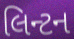
લિન્ટન